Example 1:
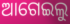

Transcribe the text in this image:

ଆଗେଇଲୁ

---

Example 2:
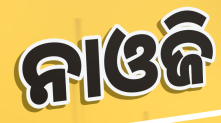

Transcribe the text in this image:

ନାଓଜି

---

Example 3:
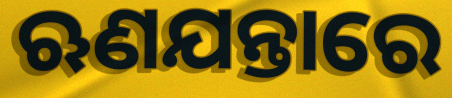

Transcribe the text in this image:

ଋଣଯନ୍ତାରେ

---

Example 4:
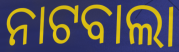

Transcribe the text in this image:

ନାଟବାଲା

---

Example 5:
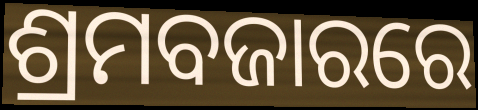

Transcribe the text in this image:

ଶ୍ରମବଜାରରେ